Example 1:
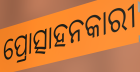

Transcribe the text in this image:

ପ୍ରୋତ୍ସାହନକାରୀ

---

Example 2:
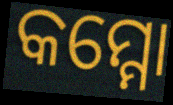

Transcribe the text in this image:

କମ୍ମୋ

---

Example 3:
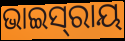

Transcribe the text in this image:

ଭାଇସ୍‍ରାୟ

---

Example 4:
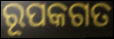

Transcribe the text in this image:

ରୂପକଗତ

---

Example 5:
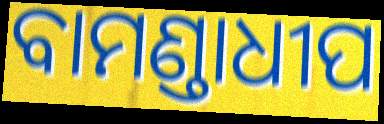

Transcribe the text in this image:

ବାମଣ୍ଡାଧୀପ